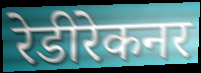
रेडीरेकनर